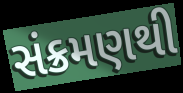
સંક્રમણથી